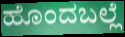
ಹೊಂದಬಲ್ಲೆ